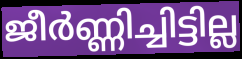
ജീർണ്ണിച്ചിട്ടില്ല